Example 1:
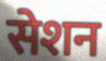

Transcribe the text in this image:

सेशन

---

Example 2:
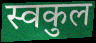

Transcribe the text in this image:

स्वकुल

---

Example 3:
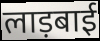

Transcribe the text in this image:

लाड़बाई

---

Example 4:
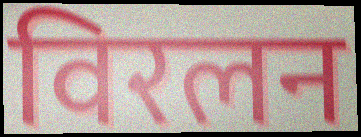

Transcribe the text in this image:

विरलन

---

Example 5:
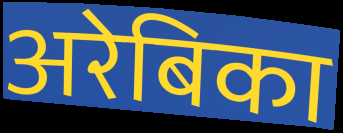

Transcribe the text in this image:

अरेबिका